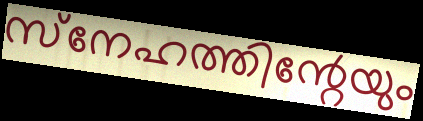
സ്‌നേഹത്തിന്റേയും